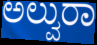
ಅಲ್ವುರಾ